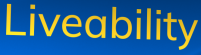
Liveability